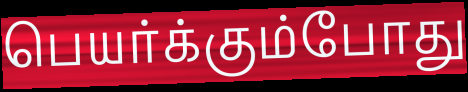
பெயர்க்கும்போது